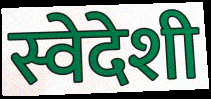
स्वेदेशी